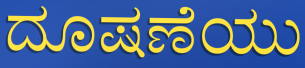
ದೂಷಣೆಯು